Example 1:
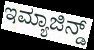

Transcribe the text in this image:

ಇಮ್ಯಾಜಿನ್ಡ್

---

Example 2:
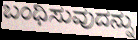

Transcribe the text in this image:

ಬಂಧಿಸುವುದನ್ನು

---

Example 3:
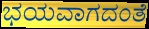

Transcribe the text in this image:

ಭಯವಾಗದಂತೆ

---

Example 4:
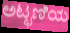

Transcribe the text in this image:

ಅಟ್ಟಣಿಯ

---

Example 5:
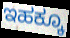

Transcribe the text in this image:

ಇಹಕ್ಕೂ